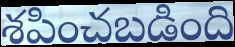
శపించబడింది